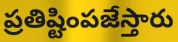
ప్రతిష్టింపజేస్తారు